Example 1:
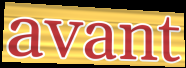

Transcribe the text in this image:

avant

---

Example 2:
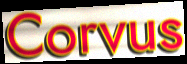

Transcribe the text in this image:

Corvus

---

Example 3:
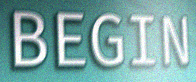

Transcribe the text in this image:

BEGIN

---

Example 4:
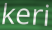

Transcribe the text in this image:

keri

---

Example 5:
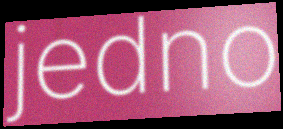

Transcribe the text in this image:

jedno